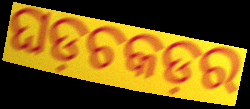
ଘଡ଼ଚକଡ଼ର